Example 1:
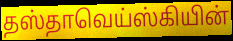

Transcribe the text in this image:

தஸ்தாவெய்ஸ்கியின்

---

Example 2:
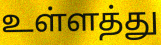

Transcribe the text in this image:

உள்ளத்து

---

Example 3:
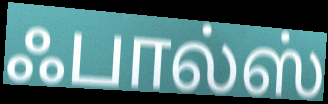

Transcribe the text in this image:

ஃபால்ஸ்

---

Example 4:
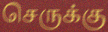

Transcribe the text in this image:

செருக்கு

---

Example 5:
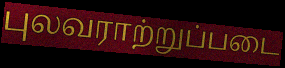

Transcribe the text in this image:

புலவராற்றுப்படை